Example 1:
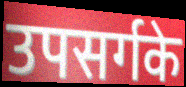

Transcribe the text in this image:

उपसर्गके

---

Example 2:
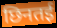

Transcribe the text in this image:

छिनतई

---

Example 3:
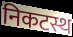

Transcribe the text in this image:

निकटस्थ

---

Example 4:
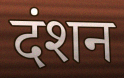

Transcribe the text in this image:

दंशन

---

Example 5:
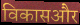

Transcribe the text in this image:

विकासऔर